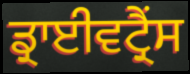
ਡ੍ਰਾਈਵਟ੍ਰੈਂਸ